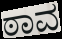
ಠಾವ